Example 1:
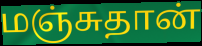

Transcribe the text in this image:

மஞ்சுதான்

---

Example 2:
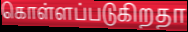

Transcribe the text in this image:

கொள்ளப்படுகிறதா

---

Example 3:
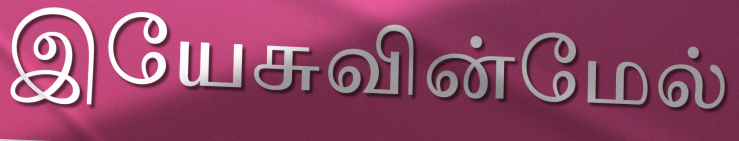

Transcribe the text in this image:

இயேசுவின்மேல்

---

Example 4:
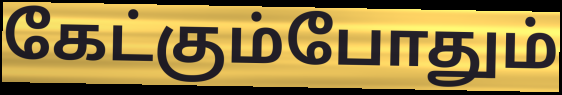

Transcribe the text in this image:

கேட்கும்போதும்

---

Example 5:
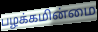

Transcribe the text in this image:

பழக்கமின்மை